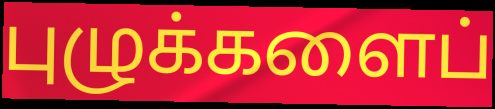
புழுக்களைப்